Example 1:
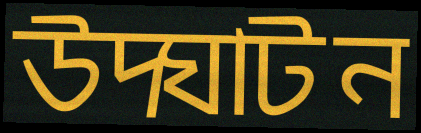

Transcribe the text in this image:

উদ্ঘাটন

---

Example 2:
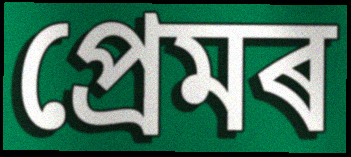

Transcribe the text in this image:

প্ৰেমৰ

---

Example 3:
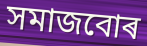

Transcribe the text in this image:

সমাজবোৰ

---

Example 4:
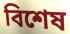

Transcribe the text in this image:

বিশেষ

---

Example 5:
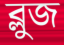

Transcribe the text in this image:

ব্লুজ